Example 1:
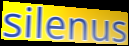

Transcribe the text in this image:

silenus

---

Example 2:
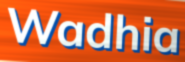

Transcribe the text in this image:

Wadhia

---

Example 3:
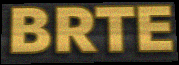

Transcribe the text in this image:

BRTE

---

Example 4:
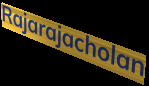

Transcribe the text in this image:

Rajarajacholan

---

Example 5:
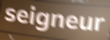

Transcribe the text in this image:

seigneur